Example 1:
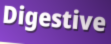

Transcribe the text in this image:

Digestive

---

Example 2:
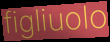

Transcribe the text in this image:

figliuolo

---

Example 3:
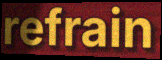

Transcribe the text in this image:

refrain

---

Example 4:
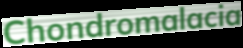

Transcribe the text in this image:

Chondromalacia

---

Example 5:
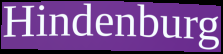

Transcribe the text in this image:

Hindenburg